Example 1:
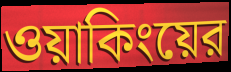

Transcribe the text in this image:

ওয়াকিংয়ের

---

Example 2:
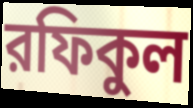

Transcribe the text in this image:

রফিকুল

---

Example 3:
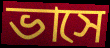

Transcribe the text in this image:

ভাসে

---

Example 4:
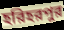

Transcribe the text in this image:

হরিহরপুর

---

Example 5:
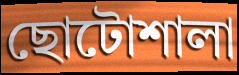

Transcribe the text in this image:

ছোটোশালা